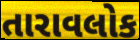
તારાવલોક